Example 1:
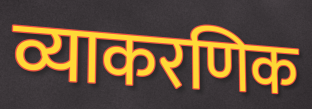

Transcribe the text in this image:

व्याकरणिक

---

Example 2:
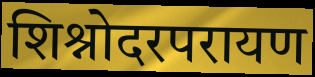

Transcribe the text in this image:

शिश्नोदरपरायण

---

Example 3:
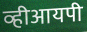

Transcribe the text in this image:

व्हीआयपी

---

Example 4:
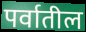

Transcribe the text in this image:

पर्वातील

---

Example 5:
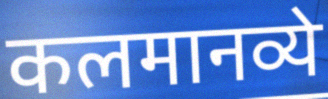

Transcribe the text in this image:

कलमानव्ये